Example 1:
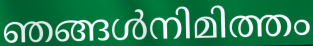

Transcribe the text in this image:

ഞങ്ങൾനിമിത്തം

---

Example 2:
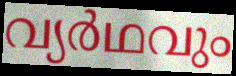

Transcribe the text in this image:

വ്യർഥവും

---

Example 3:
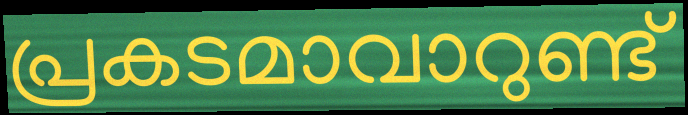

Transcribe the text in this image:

പ്രകടമാവാറുണ്ട്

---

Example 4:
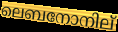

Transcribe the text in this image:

ലെബനോനില്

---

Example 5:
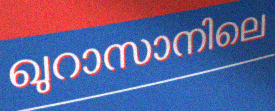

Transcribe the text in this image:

ഖുറാസാനിലെ